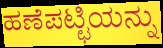
ಹಣೆಪಟ್ಟಿಯನ್ನು